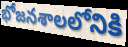
భోజనశాలలోనికి